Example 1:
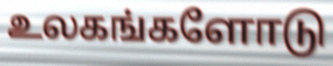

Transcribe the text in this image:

உலகங்களோடு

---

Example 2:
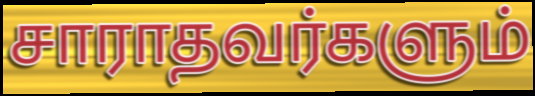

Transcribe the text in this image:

சாராதவர்களும்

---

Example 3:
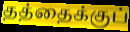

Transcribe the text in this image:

தத்தைக்குப்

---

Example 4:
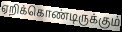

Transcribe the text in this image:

ஏறிக்கொண்டிருக்கும்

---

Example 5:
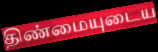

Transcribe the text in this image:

திண்மையுடைய